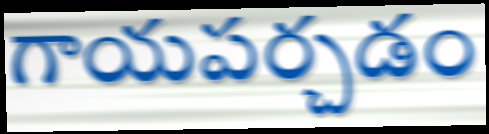
గాయపర్చడం